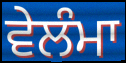
ਵੇਲੰਮਾ